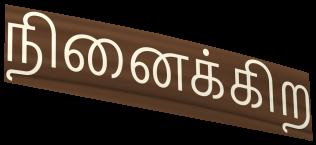
நினைக்கிற